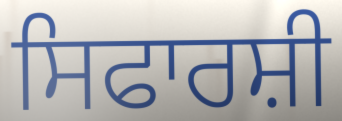
ਸਿਫਾਰਸ਼ੀ